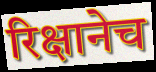
रिक्षानेच